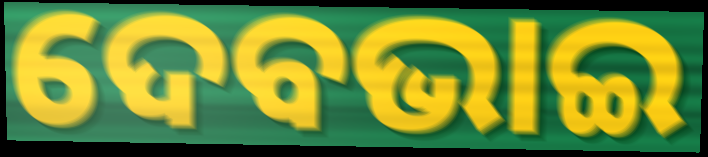
ଦେବଭାଇ